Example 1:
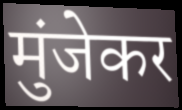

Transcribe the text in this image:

मुंजेकर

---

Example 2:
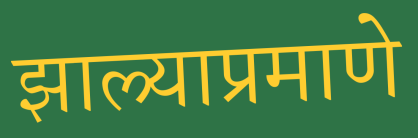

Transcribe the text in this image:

झाल्याप्रमाणे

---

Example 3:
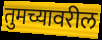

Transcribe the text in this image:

तुमच्यावरील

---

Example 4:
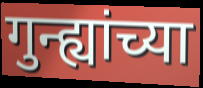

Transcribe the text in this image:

गुन्ह्यांच्या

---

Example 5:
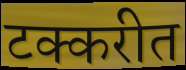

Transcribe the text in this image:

टक्करीत